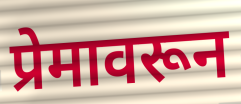
प्रेमावरून